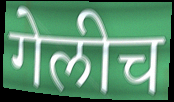
गेलीच